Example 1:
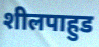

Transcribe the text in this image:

शीलपाहुड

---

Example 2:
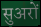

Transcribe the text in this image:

सुअरों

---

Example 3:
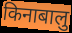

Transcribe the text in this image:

किनाबालु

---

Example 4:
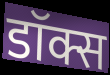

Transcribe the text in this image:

डॉक्स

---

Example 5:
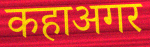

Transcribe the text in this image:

कहाअगर